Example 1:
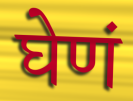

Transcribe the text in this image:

घेणं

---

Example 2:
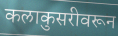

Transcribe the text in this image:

कलाकुसरीवरून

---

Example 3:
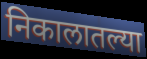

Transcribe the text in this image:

निकालातल्या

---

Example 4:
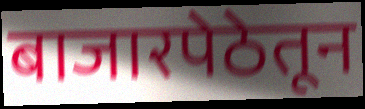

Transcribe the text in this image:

बाजारपेठेतून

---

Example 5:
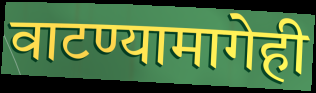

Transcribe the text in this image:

वाटण्यामागेही